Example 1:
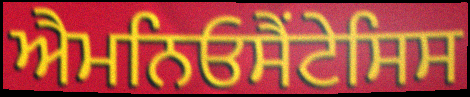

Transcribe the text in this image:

ਐਮਨਿਓਸੈਂਟੇਸਿਸ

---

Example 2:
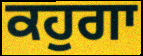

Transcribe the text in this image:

ਕਹੁਗਾ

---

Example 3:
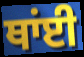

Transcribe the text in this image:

ਥਾਂਈ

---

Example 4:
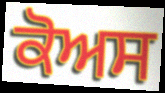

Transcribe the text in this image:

ਕੋਅਸ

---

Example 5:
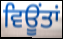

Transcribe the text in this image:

ਵਿਊਂਤਾਂ